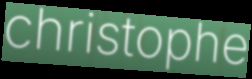
christophe